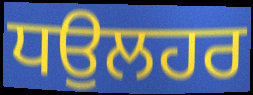
ਧਉਲਹਰ